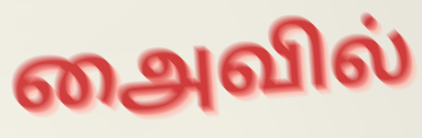
அைவில்